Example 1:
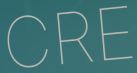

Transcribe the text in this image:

CRE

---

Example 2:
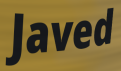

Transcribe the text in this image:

Javed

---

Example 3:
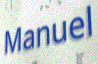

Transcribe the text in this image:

Manuel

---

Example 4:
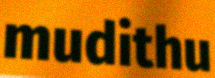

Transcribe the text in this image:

mudithu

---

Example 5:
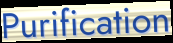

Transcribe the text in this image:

Purification